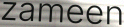
zameen